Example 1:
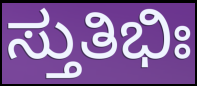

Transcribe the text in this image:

ಸ್ತುತಿಭಿಃ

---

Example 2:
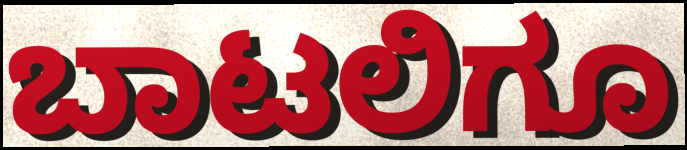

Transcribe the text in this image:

ಬಾಟಲಿಗೂ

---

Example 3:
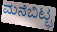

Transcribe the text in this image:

ಮನೆಬಿಟ್ಟ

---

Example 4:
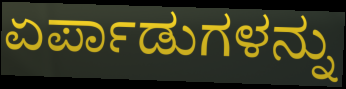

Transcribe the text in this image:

ಏರ್ಪಾಡುಗಳನ್ನು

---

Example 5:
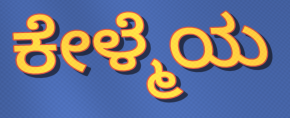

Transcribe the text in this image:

ಕೇಳ್ಮೆಯ